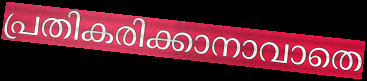
പ്രതികരിക്കാനാവാതെ